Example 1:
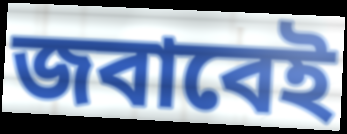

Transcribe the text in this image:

জবাবেই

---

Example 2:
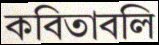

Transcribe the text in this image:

কবিতাবলি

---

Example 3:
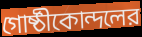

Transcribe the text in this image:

গোষ্ঠীকোন্দলের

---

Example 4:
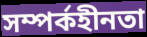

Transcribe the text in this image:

সম্পর্কহীনতা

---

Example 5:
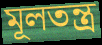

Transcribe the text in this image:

মূলতন্ত্র